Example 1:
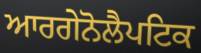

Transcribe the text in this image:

ਆਰਗੇਨੋਲੈਪਟਿਕ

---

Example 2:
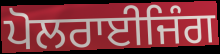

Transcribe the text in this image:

ਪੋਲਰਾਈਜਿੰਗ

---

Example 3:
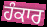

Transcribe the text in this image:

ਹੰਕਾਰ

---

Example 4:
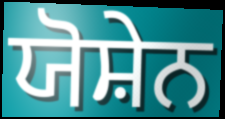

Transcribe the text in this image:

ਯੋਸ਼ੇਨ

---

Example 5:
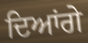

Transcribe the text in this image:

ਦਿਆਂਗੇ